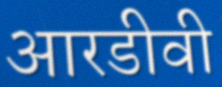
आरडीवी